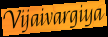
Vijaivargiya